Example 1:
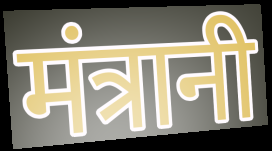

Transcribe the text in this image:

मंत्रानी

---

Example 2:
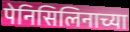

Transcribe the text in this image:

पेनिसिलिनाच्या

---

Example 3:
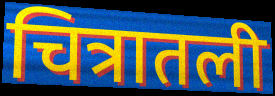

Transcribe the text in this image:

चित्रातली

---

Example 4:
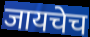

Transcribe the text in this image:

जायचेच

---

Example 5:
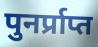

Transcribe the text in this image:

पुनर्प्राप्त